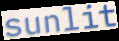
sunlit